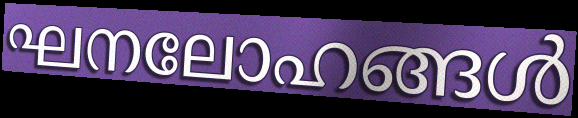
ഘനലോഹങ്ങൾ